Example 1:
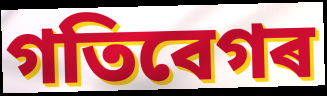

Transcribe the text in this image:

গতিবেগৰ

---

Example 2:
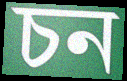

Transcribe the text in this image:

চন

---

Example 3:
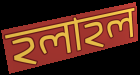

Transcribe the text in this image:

হলাহল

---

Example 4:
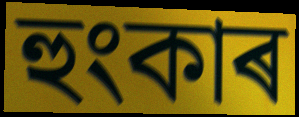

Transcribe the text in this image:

হুংকাৰ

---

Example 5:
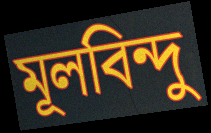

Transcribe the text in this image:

মূলবিন্দু